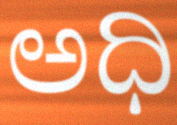
ಅಧಿ